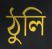
ঠুলি